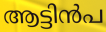
ആട്ടിൻപ